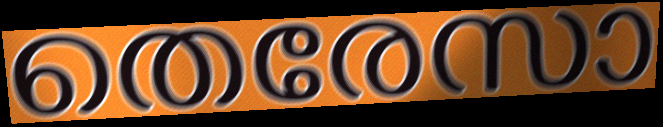
തെരേസാ